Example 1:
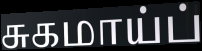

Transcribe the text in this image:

சுகமாய்ப்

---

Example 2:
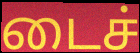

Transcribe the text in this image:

டைச்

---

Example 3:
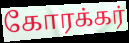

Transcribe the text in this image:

கோரக்கர்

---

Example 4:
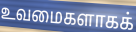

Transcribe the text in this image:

உவமைகளாகக்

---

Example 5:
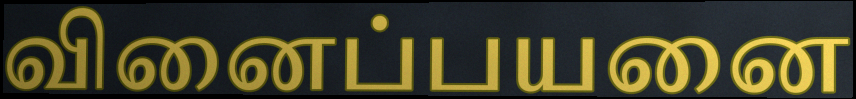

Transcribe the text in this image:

வினைப்பயனை